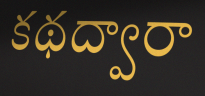
కథద్వారా